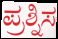
ಪ್ರಶ್ನಿಸ